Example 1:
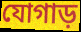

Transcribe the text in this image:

যোগাড়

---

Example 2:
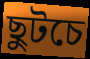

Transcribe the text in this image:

ছুটচে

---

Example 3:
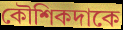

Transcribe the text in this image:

কৌশিকদাকে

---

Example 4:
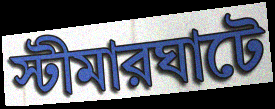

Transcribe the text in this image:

স্টীমারঘাটে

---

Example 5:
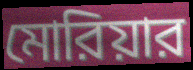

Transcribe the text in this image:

মোরিয়ার